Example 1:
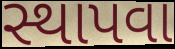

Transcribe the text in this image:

સ્થાપવા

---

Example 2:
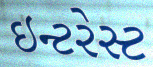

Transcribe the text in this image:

ઇન્ટરેસ્ટ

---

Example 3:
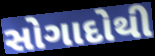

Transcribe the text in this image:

સોગાદોથી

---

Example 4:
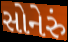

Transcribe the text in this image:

સોનેરું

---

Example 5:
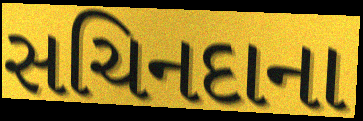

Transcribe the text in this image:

સચિનદાના